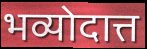
भव्योदात्त